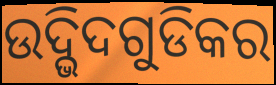
ଉଦ୍ଭିଦଗୁଡିକର